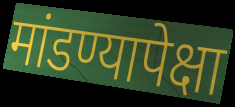
मांडण्यापेक्षा